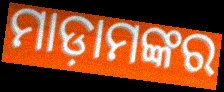
ମାଡ଼ାମଙ୍କର